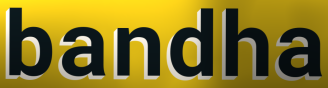
bandha